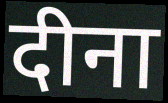
दीना